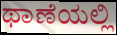
ಥಾಣೆಯಲ್ಲಿ